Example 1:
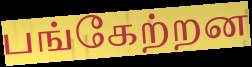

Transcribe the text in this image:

பங்கேற்றன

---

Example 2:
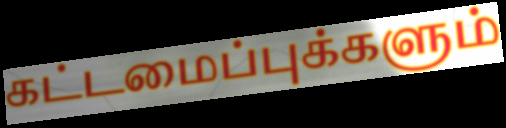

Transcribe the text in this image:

கட்டமைப்புக்களும்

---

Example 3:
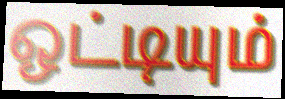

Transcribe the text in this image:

ஒட்டியும்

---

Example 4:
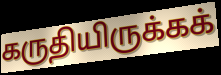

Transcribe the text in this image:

கருதியிருக்கக்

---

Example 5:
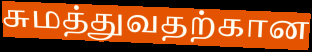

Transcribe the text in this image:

சுமத்துவதற்கான